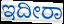
ಇದೀರಾ